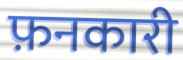
फ़नकारी